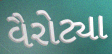
વૈરોટ્યા